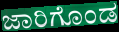
ಜಾರಿಗೊಂಡ